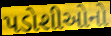
પડોશીઓનો